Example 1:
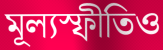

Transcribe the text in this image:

মূল্যস্ফীতিও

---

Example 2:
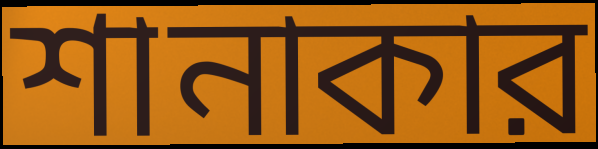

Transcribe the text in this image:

শানাকার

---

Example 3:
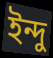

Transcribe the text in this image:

ইন্দু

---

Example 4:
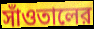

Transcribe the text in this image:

সাঁওতালের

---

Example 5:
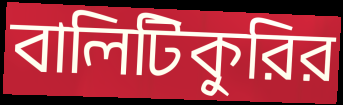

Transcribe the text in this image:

বালিটিকুরির